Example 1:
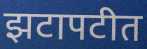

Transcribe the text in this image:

झटापटीत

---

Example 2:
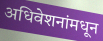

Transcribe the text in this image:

अधिवेशनांमधून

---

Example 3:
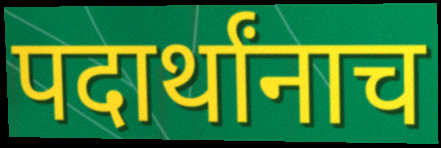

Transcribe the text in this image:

पदार्थांनाच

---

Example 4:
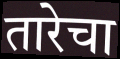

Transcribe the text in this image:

तारेचा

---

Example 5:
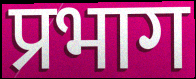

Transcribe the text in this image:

प्रभाग